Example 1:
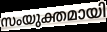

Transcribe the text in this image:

സംയുക്തമായി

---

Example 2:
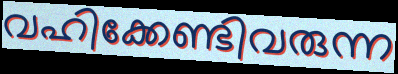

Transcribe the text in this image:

വഹിക്കേണ്ടിവരുന്ന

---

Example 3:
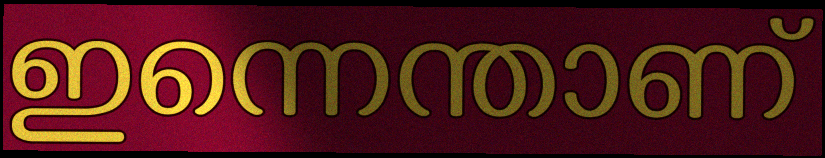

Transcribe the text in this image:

ഇന്നെന്താണ്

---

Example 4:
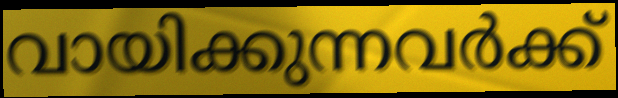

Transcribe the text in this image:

വായിക്കുന്നവർക്ക്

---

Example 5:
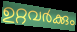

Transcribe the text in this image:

ഉറ്റവർക്കും